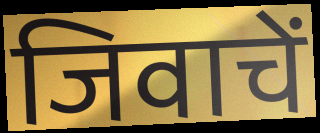
जिवाचें